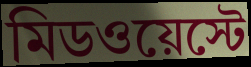
মিডওয়েস্টে